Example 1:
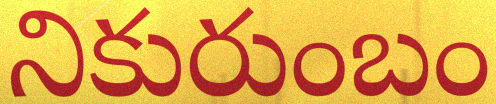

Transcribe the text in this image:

నికురుంబం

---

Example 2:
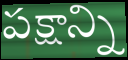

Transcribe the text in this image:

పక్షాన్ని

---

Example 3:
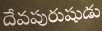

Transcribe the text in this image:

దేవపురుషుడు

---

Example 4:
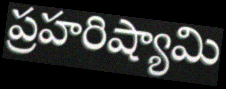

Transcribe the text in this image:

ప్రహరిష్యామి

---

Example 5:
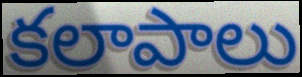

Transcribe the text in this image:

కలాపాలు